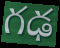
గఢ